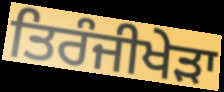
ਤਿਰੰਜੀਖੇੜਾ